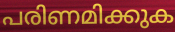
പരിണമിക്കുക